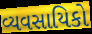
વ્યવસાયિકો